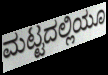
ಮಟ್ಟದಲ್ಲಿಯೂ